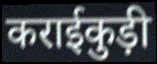
कराईकुड़ी